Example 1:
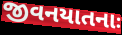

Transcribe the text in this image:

જીવનયાતનાઃ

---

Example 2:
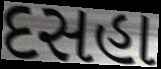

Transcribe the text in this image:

દસહા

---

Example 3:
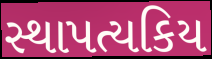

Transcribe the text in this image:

સ્થાપત્યકિય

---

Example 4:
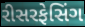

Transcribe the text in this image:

રીસરફેસિંગ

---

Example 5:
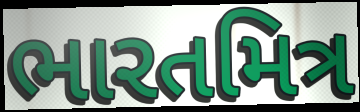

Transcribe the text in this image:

ભારતમિત્ર